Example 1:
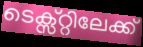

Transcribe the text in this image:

ടെക്സ്റ്റിലേക്ക്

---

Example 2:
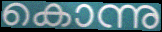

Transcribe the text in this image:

കൊന്നു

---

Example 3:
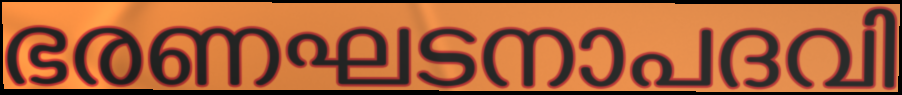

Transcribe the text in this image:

ഭരണഘടനാപദവി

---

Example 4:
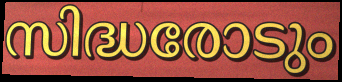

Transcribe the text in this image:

സിദ്ധരോടും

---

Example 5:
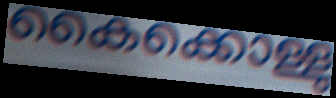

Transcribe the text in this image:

കൈക്കൊള്ളു